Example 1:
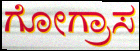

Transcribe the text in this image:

ಗೋಗ್ರಾಸ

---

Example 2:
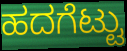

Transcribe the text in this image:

ಹದಗೆಟ್ಟು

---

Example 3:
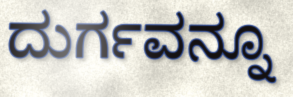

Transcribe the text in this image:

ದುರ್ಗವನ್ನೂ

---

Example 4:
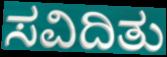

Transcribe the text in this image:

ಸವಿದಿತು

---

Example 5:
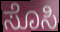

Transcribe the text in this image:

ಸೊಸಿ